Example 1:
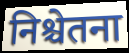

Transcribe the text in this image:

निश्चेतना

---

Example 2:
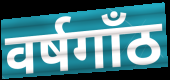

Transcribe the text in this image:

वर्षगाँठ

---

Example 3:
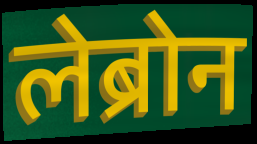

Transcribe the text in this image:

लेब्रोन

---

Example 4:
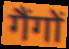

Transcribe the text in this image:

गैंगों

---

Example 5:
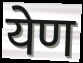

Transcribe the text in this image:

येण